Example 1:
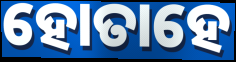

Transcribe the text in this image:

ହୋତାହେ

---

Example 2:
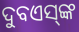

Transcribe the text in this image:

ଦୁବଏସ୍‌ଙ୍କ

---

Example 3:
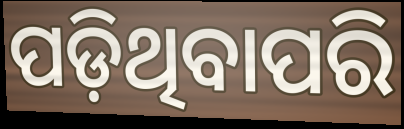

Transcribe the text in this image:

ପଡ଼ିଥିବାପରି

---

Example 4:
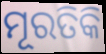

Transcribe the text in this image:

ମୂରତିକି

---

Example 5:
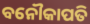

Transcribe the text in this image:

ବନୌକାପତି